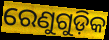
ରେଣୁଗୁଡ଼ିକ